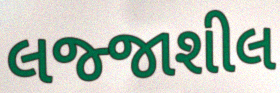
લજ્જાશીલ